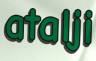
atalji